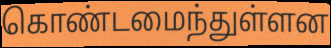
கொண்டமைந்துள்ளன